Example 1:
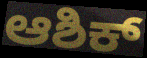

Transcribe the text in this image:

ಆಶಿಕ್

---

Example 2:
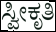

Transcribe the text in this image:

ಸ್ವೀಕೃತಿ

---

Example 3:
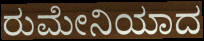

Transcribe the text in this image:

ರುಮೇನಿಯಾದ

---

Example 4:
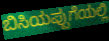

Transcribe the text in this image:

ಬಿಸಿಯಪ್ಪುಗೆಯಲ್ಲಿ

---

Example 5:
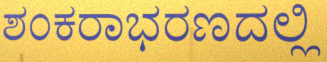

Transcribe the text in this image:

ಶಂಕರಾಭರಣದಲ್ಲಿ